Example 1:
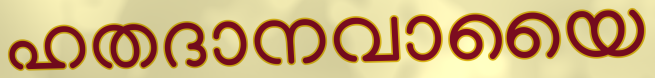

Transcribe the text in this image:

ഹതദാനവായൈ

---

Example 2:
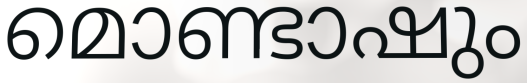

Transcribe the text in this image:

മൊണ്ടാഷും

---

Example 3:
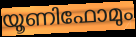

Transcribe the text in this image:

യൂണിഫോമും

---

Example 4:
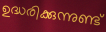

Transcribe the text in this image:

ഉദ്ധരിക്കുന്നുണ്ട്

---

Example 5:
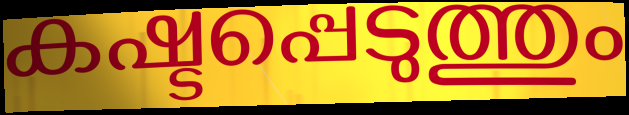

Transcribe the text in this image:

കഷ്ടപ്പെടുത്തും